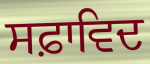
ਸਫ਼ਾਵਿਦ